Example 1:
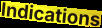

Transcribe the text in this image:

Indications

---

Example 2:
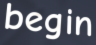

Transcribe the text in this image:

begin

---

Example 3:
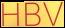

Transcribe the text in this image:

HBV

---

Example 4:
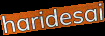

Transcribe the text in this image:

haridesai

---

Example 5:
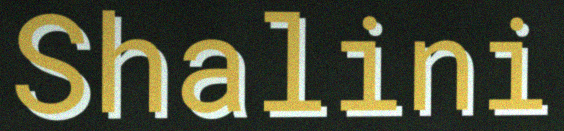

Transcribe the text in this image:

Shalini